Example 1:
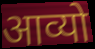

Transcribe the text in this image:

आव्यो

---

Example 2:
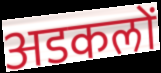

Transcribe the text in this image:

अडकलों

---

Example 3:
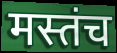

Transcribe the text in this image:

मस्तंच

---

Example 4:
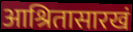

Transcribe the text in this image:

आश्रितासारखं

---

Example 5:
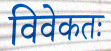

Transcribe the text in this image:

विवेकतः